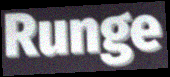
Runge